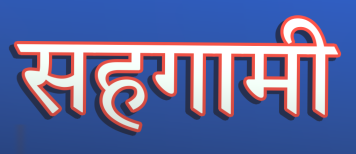
सहगामी